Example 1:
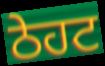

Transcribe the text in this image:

ਠੇਹਟ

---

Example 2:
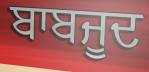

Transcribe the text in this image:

ਬਾਬਜੂਦ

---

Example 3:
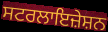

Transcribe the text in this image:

ਸਟਰਲਾਇਜ਼ੇਸ਼ਨ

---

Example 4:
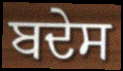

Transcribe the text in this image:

ਬਦੇਸ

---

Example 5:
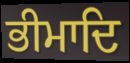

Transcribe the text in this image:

ਭੀਮਾਦਿ